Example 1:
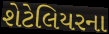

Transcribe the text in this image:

શેટેલિયરના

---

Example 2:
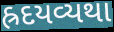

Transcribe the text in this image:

હ્રદયવ્યથા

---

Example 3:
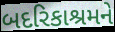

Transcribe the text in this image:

બદરિકાશ્રમને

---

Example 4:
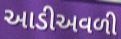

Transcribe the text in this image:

આડીઅવળી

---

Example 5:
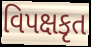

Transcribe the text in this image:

વિપક્ષકૃત